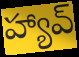
హ్యావ్